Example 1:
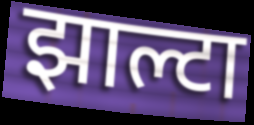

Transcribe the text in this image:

झाल्टा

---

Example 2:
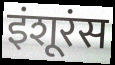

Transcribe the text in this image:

इंशूरंस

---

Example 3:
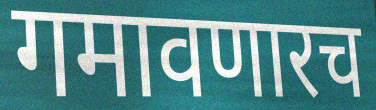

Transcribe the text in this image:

गमावणारच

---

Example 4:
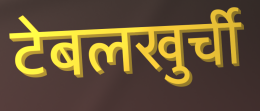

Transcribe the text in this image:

टेबलखुर्ची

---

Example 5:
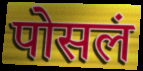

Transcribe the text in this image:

पोसलं